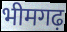
भीमगढ़